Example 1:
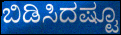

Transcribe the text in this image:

ಬಿಡಿಸಿದಷ್ಟೂ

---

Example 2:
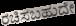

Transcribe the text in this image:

ರಚಿಸಬಹುದೇ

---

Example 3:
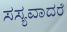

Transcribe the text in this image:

ಸಸ್ಯವಾದರೆ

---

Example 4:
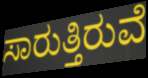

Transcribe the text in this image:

ಸಾರುತ್ತಿರುವೆ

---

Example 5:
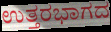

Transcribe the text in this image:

ಉತ್ತರಭಾಗದ